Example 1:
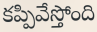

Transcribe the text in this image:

కప్పివేస్తోంది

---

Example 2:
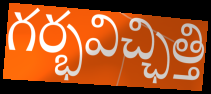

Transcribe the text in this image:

గర్భవిచ్ఛిత్తి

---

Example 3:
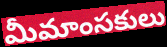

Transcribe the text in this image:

మీమాంసకులు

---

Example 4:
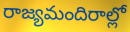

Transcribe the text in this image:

రాజ్యమందిరాల్లో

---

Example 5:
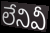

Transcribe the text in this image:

లేనివీ